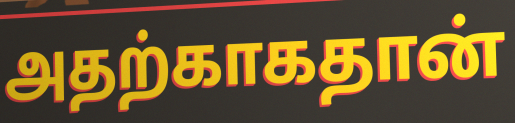
அதற்காகதான்